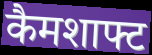
कैमशाफ्ट